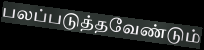
பலப்படுத்தவேண்டும்